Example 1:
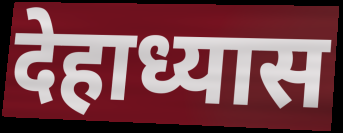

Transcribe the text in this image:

देहाध्यास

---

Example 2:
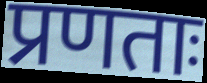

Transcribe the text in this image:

प्रणताः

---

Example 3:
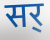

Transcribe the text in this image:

सर्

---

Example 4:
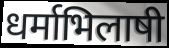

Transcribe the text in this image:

धर्माभिलाषी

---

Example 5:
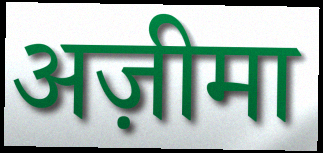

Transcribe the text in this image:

अज़ीमा